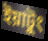
ইয়াটুং